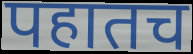
पहातच